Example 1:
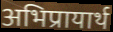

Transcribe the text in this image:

अभिप्रायार्थ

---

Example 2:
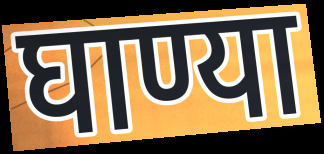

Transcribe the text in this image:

घाण्या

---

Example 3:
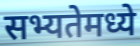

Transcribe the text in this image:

सभ्यतेमध्ये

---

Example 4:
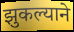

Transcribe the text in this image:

झुकल्याने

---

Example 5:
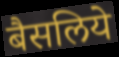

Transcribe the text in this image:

बैसलिये